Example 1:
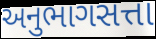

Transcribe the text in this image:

અનુભાગસત્તા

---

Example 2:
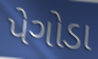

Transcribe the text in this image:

પેગોડા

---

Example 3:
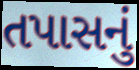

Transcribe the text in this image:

તપાસનું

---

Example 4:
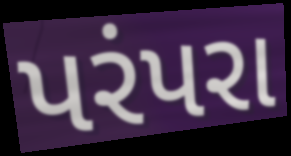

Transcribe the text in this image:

પરંપરા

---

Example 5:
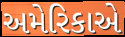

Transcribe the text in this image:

અમેરિકાએ